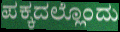
ಪಕ್ಕದಲ್ಲೊಂದು